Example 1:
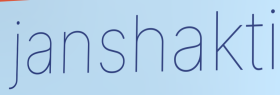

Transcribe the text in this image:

janshakti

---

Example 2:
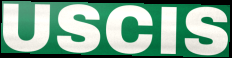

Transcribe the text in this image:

USCIS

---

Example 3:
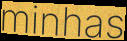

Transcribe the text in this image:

minhas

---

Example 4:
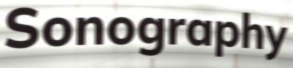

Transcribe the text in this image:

Sonography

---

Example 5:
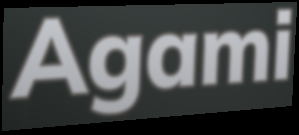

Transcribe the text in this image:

Agami